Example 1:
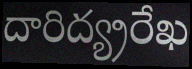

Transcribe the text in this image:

దారిద్య్రరేఖ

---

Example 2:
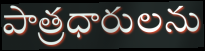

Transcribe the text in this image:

పాత్రధారులను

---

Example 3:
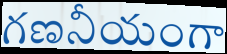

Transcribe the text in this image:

గణనీయంగా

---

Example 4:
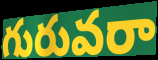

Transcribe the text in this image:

గురువరా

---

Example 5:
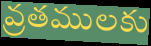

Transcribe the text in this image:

వ్రతములకు